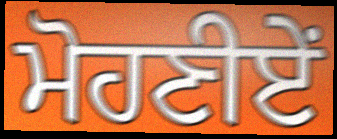
ਮੋਹਣੀਏਂ